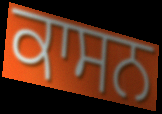
ਕਾਸਨ